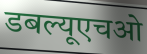
डबल्यूएचओ